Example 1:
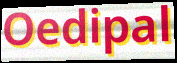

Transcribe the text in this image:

Oedipal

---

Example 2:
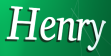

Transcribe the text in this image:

Henry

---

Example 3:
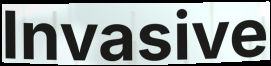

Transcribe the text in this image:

Invasive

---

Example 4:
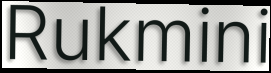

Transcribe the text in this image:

Rukmini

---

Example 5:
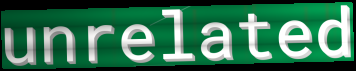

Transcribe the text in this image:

unrelated